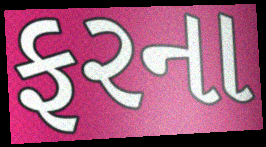
ફરના